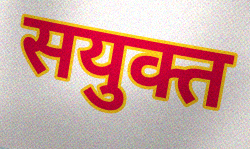
सयुक्त